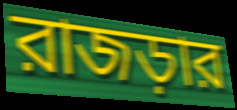
রাজড়ার